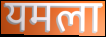
यमला